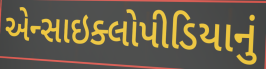
એન્સાઇક્લોપીડિયાનું